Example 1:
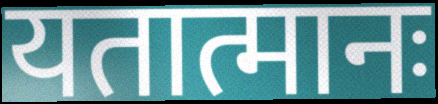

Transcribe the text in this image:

यतात्मानः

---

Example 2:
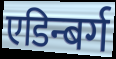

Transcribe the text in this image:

एडिन्बर्ग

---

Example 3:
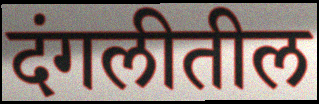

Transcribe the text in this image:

दंगलीतील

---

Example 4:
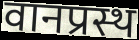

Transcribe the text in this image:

वानप्रस्थ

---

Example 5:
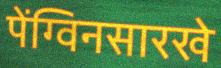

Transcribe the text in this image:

पेंग्विनसारखे